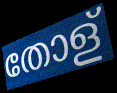
തോള്